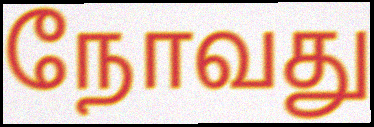
நோவது